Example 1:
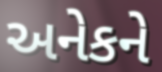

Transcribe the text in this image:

અનેકને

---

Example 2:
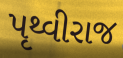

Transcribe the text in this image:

પૃથ્વીરાજ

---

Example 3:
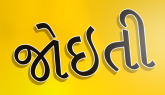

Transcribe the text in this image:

જોઇતી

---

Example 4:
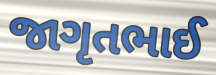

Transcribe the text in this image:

જાગૃતભાઈ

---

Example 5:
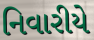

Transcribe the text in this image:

નિવારીયે